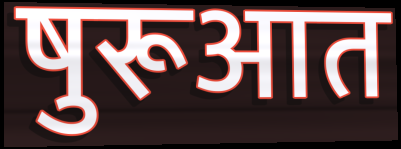
षुरूआत